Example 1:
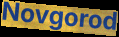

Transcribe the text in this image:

Novgorod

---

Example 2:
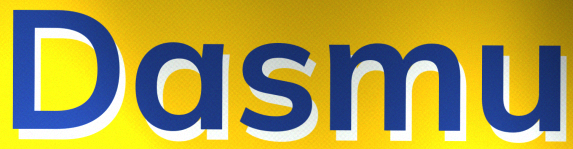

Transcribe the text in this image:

Dasmu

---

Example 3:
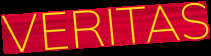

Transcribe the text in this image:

VERITAS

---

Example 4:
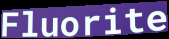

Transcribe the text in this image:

Fluorite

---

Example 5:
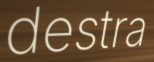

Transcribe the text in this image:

destra